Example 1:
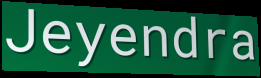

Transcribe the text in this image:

Jeyendra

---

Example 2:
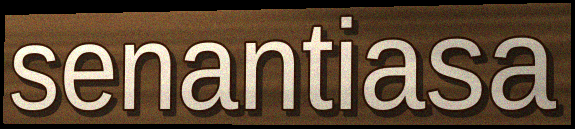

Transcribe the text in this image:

senantiasa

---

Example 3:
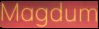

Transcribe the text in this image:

Magdum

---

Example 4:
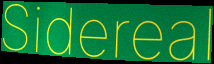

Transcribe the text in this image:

Sidereal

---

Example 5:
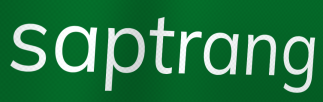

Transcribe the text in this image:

saptrang